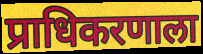
प्राधिकरणाला